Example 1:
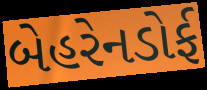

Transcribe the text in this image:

બેહરેનડોર્ફ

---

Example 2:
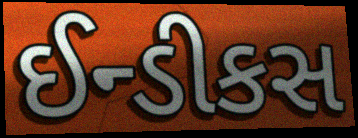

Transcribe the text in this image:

ઈન્ડીકસ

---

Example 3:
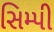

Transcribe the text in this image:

સિમ્પી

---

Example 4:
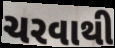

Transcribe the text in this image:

ચરવાથી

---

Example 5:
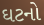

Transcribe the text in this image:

ઘટનો